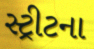
સ્ટ્રીટના